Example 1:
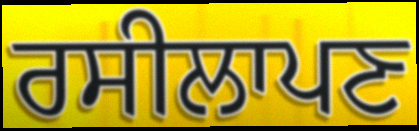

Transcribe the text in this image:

ਰਸੀਲਾਪਣ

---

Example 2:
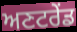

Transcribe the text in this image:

ਅਣਟਰੇਂਡ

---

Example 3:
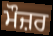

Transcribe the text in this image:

ਮੌਜ਼ਰ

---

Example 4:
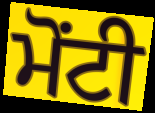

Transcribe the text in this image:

ਮੋਂਟੀ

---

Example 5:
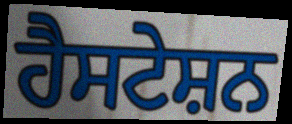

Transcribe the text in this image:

ਹੈਸਟੇਸ਼ਨ